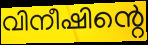
വിനീഷിന്റെ